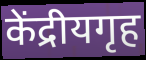
केंद्रीयगृह